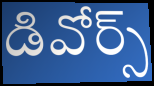
డివోర్స్